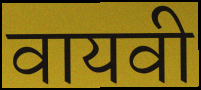
वायवी